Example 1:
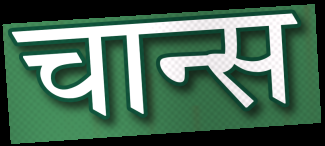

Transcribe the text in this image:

चान्स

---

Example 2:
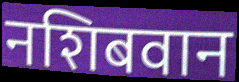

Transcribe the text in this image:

नशिबवान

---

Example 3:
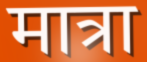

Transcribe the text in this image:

मात्रा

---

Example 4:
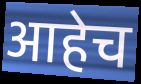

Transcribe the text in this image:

आहेच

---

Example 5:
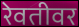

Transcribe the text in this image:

रेवतीवर